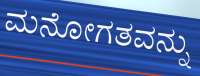
ಮನೋಗತವನ್ನು